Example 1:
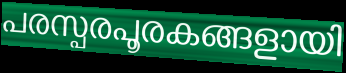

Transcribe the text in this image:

പരസ്പരപൂരകങ്ങളായി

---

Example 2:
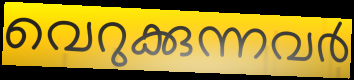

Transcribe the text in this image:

വെറുക്കുന്നവർ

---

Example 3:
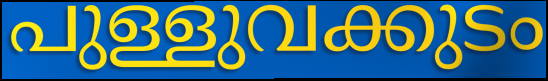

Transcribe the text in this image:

പുള്ളുവക്കുടം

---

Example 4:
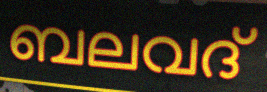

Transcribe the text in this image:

ബലവദ്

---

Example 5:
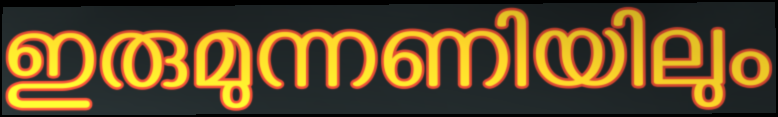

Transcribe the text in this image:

ഇരുമുന്നണിയിലും